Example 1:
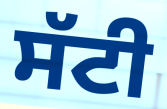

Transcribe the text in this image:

ਸੱਟੀ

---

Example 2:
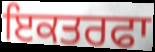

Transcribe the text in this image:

ਇਕਤਰਫਾ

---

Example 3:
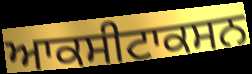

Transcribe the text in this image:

ਆਕਸੀਟਾਕਸਨ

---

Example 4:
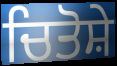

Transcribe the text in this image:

ਚਿਤੋਸ਼ੇ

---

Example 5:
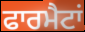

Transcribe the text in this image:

ਫਾਰਮੈਟਾਂ